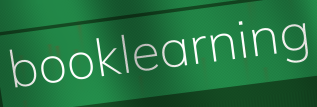
booklearning